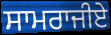
ਸਾਮਰਾਜੀਏ